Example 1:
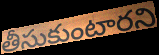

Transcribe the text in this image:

తీసుకుంటారని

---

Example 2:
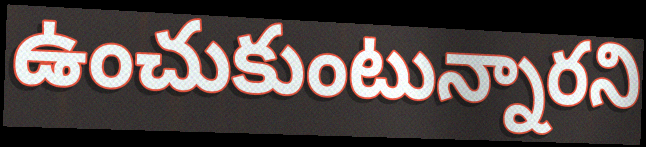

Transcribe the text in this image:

ఉంచుకుంటున్నారని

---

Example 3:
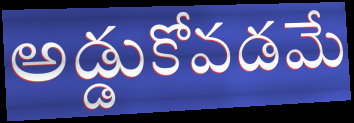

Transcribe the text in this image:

అడ్డుకోవడమే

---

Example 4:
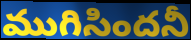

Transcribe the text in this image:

ముగిసిందనీ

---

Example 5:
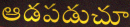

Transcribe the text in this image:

ఆడపడుచూ